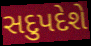
સદુપદેશે